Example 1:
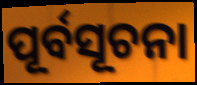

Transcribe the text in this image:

ପୂର୍ବସୂଚନା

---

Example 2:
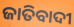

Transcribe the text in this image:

ଜାତିବାଦୀ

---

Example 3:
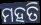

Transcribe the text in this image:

ମହତି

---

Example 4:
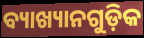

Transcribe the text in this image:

ବ୍ୟାଖ୍ୟାନଗୁଡ଼ିକ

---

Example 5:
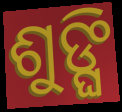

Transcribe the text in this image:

ଶୁଙ୍ଘି